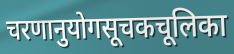
चरणानुयोगसूचकचूलिका